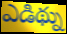
ఎడిథ్ను